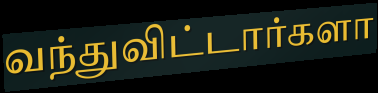
வந்துவிட்டார்களா